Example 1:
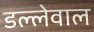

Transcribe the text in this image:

डल्लेवाल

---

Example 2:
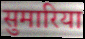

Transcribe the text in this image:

सुमारिया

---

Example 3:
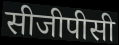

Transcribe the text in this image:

सीजीपीसी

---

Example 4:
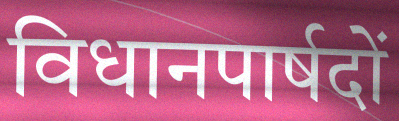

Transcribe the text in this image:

विधानपार्षदों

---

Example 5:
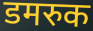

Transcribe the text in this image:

डमरुक